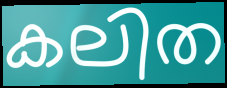
കലിത